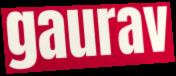
gaurav